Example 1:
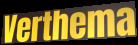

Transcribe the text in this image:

Verthema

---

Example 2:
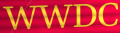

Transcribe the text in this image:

WWDC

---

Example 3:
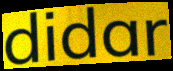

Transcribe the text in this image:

didar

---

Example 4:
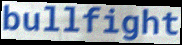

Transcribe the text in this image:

bullfight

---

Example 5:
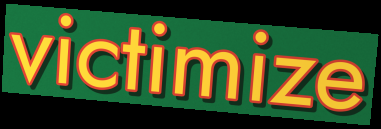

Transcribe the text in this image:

victimize